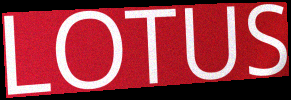
LOTUS